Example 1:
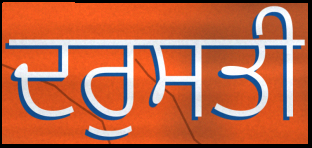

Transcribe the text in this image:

ਦਰੁਸਤੀ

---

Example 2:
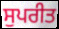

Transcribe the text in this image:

ਸੁਪਰੀਤ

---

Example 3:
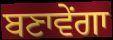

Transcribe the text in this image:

ਬਣਾਵੇਂਗਾ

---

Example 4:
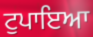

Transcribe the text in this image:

ਟੁਪਾਇਆ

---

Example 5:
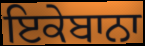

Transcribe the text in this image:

ਇਕੇਬਾਨਾ